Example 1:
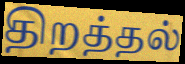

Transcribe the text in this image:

திறத்தல்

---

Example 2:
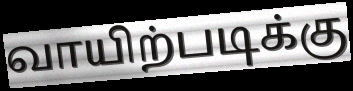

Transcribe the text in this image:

வாயிற்படிக்கு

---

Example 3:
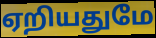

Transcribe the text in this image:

ஏறியதுமே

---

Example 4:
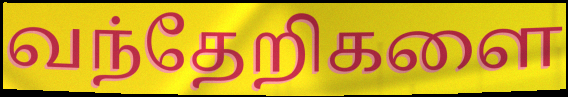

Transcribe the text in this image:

வந்தேறிகளை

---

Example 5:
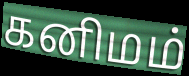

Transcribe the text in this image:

கனிமம்